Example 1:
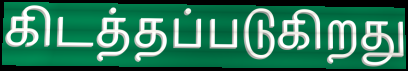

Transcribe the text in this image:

கிடத்தப்படுகிறது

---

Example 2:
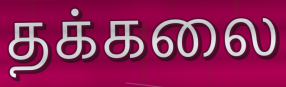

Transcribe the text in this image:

தக்கலை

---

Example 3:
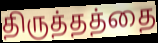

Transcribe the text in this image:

திருத்தத்தை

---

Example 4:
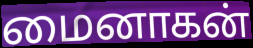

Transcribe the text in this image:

மைனாகன்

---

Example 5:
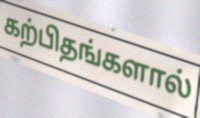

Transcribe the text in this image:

கற்பிதங்களால்